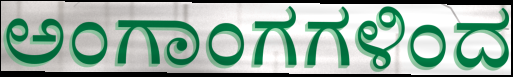
ಅಂಗಾಂಗಗಳಿಂದ